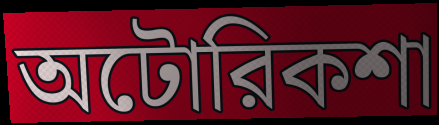
অটোরিকশা